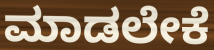
ಮಾಡಲೇಕೆ